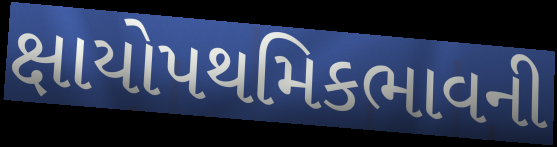
ક્ષાયોપથમિકભાવની